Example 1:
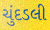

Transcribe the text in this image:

ચુંદડલી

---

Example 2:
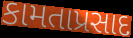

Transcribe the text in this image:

કામતાપ્રસાદ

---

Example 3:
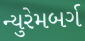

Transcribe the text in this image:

ન્યુરેમબર્ગ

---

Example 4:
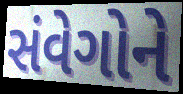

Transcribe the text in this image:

સંવેગોને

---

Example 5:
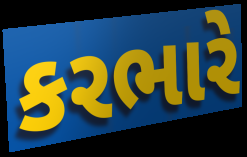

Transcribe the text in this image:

કરભારે